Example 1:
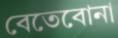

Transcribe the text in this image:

বেতেবোনা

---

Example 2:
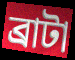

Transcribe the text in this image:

ব্রাটা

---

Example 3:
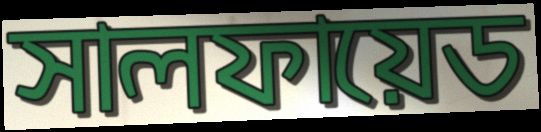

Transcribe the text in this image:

সালফায়েড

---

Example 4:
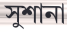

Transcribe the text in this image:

সুশানা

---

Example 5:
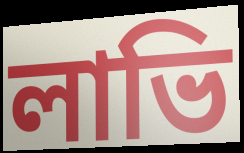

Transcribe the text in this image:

লাভি